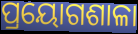
ପ୍ରୟୋଗଶାଳା